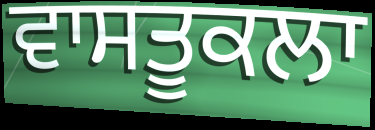
ਵਾਸਤੂਕਲਾ